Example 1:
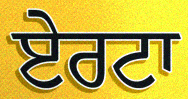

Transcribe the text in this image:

ਏਰਟਾ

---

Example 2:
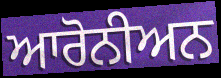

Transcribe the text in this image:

ਆਰੋਨੀਅਨ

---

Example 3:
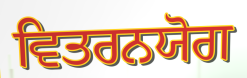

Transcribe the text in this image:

ਵਿਤਰਨਯੋਗ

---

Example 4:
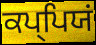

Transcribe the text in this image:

ਕਪ੍ਪਿਯਂ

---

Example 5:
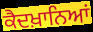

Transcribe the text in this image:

ਕੈਦਖ਼ਾਨਿਆਂ